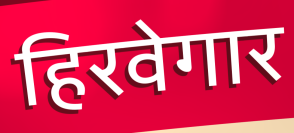
हिरवेगार